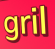
gril